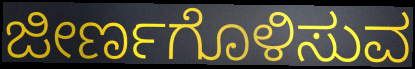
ಜೀರ್ಣಗೊಳಿಸುವ